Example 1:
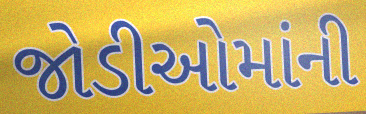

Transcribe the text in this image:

જોડીઓમાંની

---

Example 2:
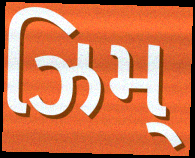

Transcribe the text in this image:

ઝિમ્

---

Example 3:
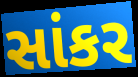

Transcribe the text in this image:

સાંકર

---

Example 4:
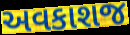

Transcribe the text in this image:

અવકાશજ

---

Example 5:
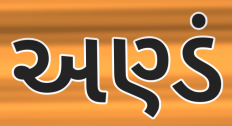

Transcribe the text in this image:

અણ્ડં